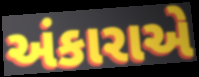
અંકારાએ